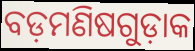
ବଡ଼ମଣିଷଗୁଡ଼ାକ